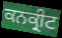
ਕਨਕ੍ਰੀਟ